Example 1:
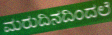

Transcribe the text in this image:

ಮರುದಿನದಿಂದಲೆ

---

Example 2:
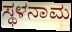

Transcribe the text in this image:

ಸ್ಥಳನಾಮ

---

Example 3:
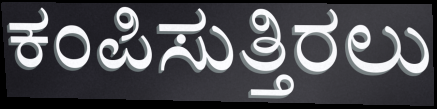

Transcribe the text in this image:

ಕಂಪಿಸುತ್ತಿರಲು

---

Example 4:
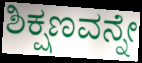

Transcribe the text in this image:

ಶಿಕ್ಷಣವನ್ನೇ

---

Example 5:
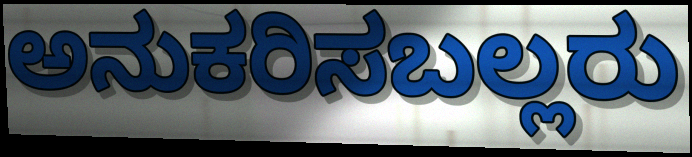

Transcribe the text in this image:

ಅನುಕರಿಸಬಲ್ಲರು